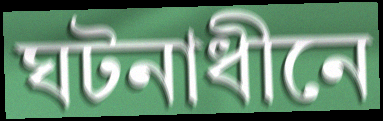
ঘটনাধীনে